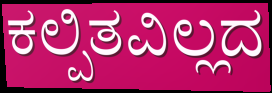
ಕಲ್ಪಿತವಿಲ್ಲದ